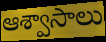
ఆశ్వాసాలు